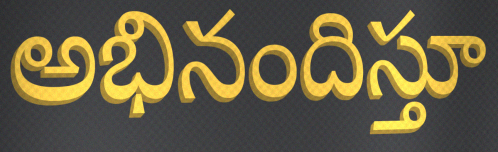
అభినందిస్తూ